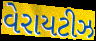
વેરાયટીઝ